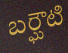
బర్ఘౌటి